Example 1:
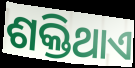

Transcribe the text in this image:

ଶକ୍ତିଥାଏ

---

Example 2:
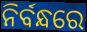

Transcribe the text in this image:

ନିର୍ବନ୍ଧରେ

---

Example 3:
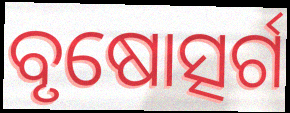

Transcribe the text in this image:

ବୃଷୋତ୍ସର୍ଗ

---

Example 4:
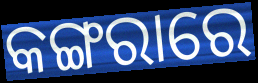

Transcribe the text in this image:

କଙ୍ଗରାରେ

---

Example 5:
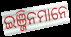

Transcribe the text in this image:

ଇଞ୍ଜିନମାନେ